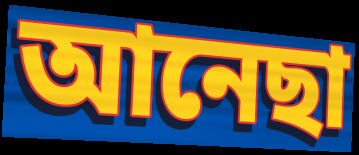
আনেছা